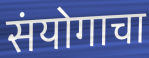
संयोगाचा